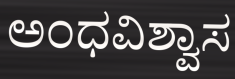
ಅಂಧವಿಶ್ವಾಸ